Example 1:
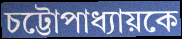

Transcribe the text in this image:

চট্টোপাধ্যায়কে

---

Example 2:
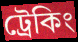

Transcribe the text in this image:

ট্রেকিং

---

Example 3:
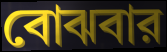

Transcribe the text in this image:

বোঝবার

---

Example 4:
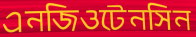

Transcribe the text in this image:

এনজিওটেনসিন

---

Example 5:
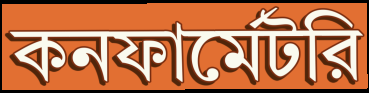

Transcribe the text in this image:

কনফার্মেটরি